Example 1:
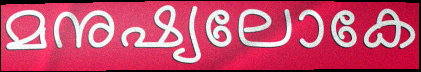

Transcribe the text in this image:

മനുഷ്യലോകേ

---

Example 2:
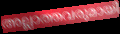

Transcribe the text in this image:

അല്ലാത്തവരുമായി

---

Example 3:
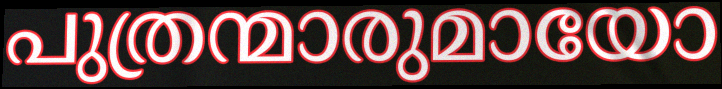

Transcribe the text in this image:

പുത്രന്മാരുമായോ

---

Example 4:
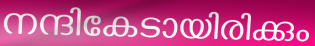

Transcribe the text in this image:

നന്ദികേടായിരിക്കും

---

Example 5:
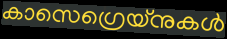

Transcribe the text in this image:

കാസെഗ്രെയ്നുകൾ